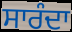
ਸਾਰੰਦਾ